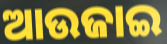
ଆଉଜାଇ